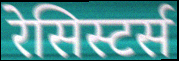
रेसिस्टर्स